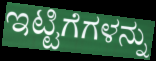
ಇಟ್ಟಿಗೆಗಳನ್ನು